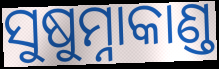
ସୁଷୁମ୍ନାକାଣ୍ଡ